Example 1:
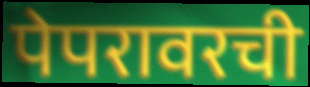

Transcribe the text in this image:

पेपरावरची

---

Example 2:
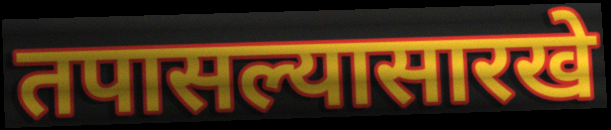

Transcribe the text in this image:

तपासल्यासारखे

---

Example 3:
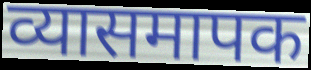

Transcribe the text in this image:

व्यासमापक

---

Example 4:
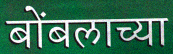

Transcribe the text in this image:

बोंबलाच्या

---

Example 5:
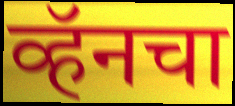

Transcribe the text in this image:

व्हॅनचा